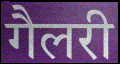
गैलरी